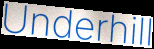
Underhill